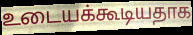
உடையக்கூடியதாக